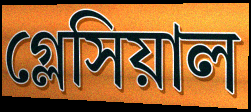
গ্লেসিয়াল